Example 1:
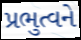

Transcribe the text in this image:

પ્રભુત્વને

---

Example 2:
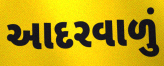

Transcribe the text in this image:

આદરવાળું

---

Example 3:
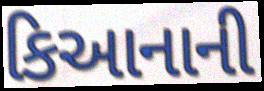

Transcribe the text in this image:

કિઆનાની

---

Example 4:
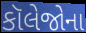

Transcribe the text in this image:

કૉલેજોના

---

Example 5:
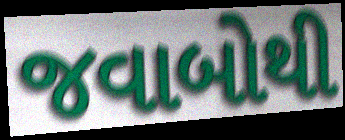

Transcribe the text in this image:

જવાબોથી